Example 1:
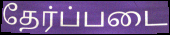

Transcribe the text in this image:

தேர்ப்படை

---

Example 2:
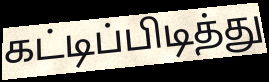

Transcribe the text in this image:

கட்டிப்பிடித்து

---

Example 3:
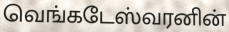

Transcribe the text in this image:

வெங்கடேஸ்வரனின்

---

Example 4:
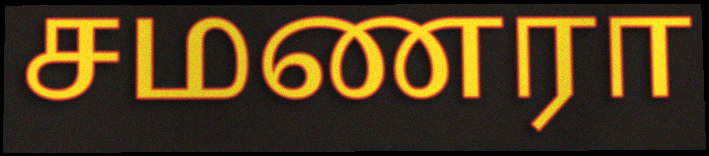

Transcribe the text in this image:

சமணரா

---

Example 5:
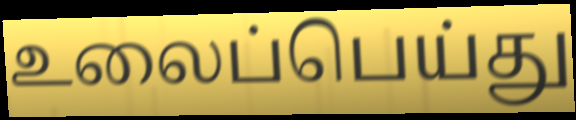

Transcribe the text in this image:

உலைப்பெய்து